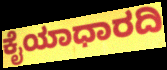
ಕೈಯಾಧಾರದಿ